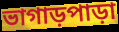
ভাগাড়পাড়া